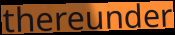
thereunder